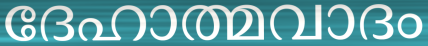
ദേഹാത്മവാദം